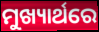
ମୁଖ୍ୟାର୍ଥରେ